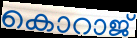
കൊറാജ്